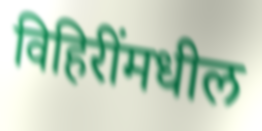
विहिरींमधील